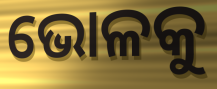
ଭୋଳକୁ